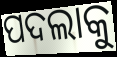
ପଦଲାକୁ